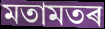
মতামতৰ